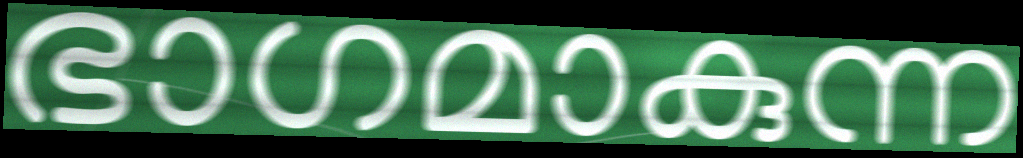
ഭാഗമാകുന്ന